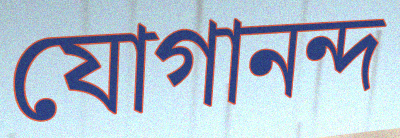
যোগানন্দ